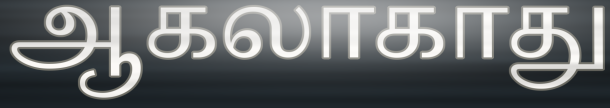
ஆகலாகாது